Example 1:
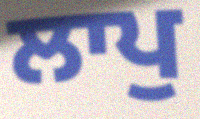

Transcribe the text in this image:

ਲਾਪੁ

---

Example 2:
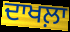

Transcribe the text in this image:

ਦਾਖਲ਼ਾ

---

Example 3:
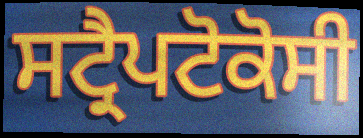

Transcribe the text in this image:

ਸਟ੍ਰੈਪਟੋਕੋਸੀ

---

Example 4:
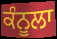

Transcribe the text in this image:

ਕੰਨੂਲਾ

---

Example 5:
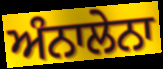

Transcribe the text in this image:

ਅੰਨਾਲੇਨਾ